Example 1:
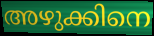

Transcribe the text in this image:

അഴുക്കിനെ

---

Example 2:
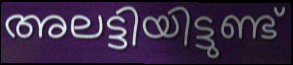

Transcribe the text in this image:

അലട്ടിയിട്ടുണ്ട്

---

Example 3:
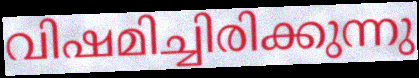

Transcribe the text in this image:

വിഷമിച്ചിരിക്കുന്നു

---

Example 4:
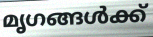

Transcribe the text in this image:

മൃഗങ്ങൾക്ക്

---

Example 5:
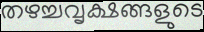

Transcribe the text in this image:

തഴച്ചവൃക്ഷങ്ങളുടെ